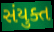
સંયુક્ત